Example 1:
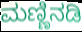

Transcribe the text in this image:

ಮಣ್ಣಿನಡಿ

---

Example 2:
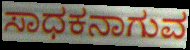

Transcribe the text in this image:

ಸಾಧಕನಾಗುವ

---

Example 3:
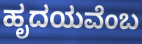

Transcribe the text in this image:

ಹೃದಯವೆಂಬ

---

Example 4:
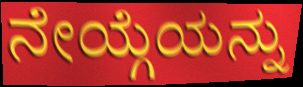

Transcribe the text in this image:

ನೇಯ್ಗೆಯನ್ನು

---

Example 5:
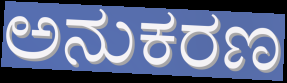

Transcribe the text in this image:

ಅನುಕರಣ